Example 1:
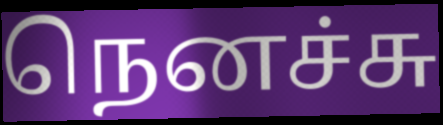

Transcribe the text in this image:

நெனச்சு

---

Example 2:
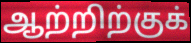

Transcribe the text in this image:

ஆற்றிற்குக்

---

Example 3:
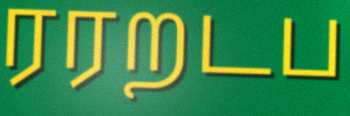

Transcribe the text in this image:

ரரறடப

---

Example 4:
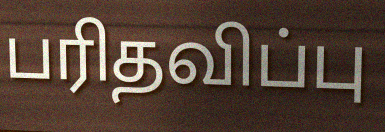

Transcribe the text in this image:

பரிதவிப்பு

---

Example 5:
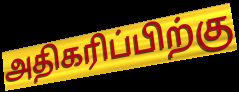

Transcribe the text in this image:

அதிகரிப்பிற்கு